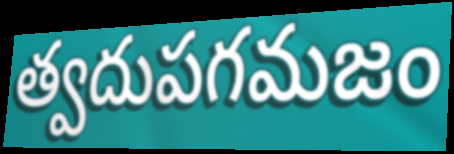
త్వదుపగమజం